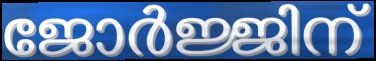
ജോർജ്ജിന്